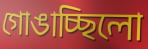
গোঙাচ্ছিলো